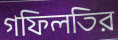
গফিলতির